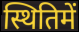
स्थितिमें